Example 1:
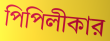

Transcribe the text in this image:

পিপিলীকার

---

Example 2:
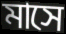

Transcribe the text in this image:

মাসে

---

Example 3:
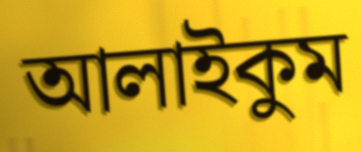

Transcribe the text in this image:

আলাইকুম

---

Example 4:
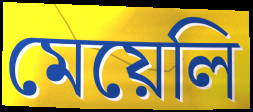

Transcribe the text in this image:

মেয়েলি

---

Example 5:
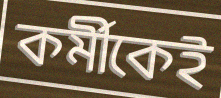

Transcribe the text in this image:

কর্মীকেই